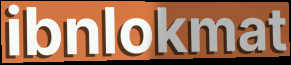
ibnlokmat